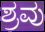
ಶ್ರವು